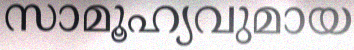
സാമൂഹ്യവുമായ